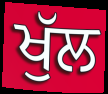
ਖੁੱਲ